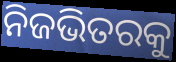
ନିଜଭିତରକୁ